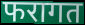
फरागत